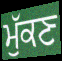
ਮੁੱਕਣ